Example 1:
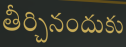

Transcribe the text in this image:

తీర్చినందుకు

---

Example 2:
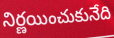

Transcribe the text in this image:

నిర్ణయించుకునేది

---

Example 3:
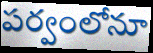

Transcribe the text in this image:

పర్వంలోనూ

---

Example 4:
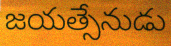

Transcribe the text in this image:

జయత్సేనుడు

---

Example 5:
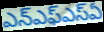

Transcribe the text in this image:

ఎన్ఎఫ్ఎస్ఏ